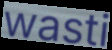
wasti